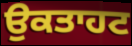
ਉਕਤਾਹਟ